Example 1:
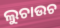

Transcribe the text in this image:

ଲୁଚାଉଚ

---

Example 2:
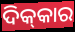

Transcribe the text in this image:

ଦିକ୍‌କାର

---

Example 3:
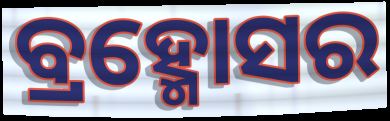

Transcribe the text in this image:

ବ୍ରହ୍ମୋସର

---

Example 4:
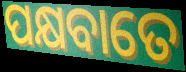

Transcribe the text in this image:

ପକ୍ଷବାତେ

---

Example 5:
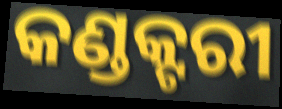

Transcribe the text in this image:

କଣ୍ଡକ୍ଟରୀ